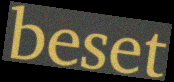
beset